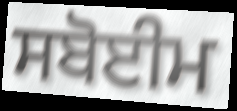
ਸਬੋਈਮ